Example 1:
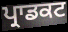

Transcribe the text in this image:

ਪ੍ਰਾਡਕਟ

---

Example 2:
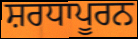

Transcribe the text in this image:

ਸ਼ਰਧਾਪੂਰਨ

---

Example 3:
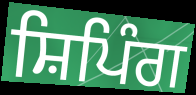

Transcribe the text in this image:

ਸ਼ਿਪਿੰਗ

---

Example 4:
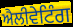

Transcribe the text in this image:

ਐਲੀਵੇਟਿੰਗ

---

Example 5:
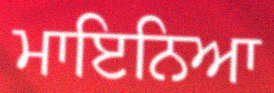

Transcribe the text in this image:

ਮਾਇਨਿਆ